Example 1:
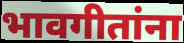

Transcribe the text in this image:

भावगीतांना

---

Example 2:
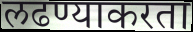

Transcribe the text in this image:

लढण्याकरता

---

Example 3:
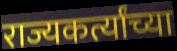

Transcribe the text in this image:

राज्यकर्त्यांच्या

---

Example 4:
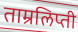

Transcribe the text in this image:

ताम्रलिप्ती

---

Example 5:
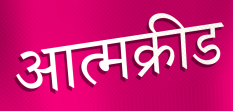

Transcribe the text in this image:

आत्मक्रीड